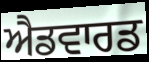
ਐਡਵਾਰਡ